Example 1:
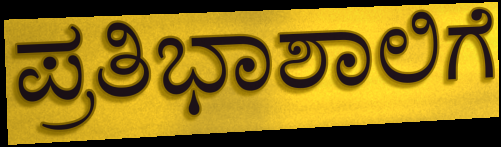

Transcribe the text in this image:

ಪ್ರತಿಭಾಶಾಲಿಗೆ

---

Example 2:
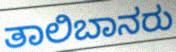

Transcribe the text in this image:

ತಾಲಿಬಾನರು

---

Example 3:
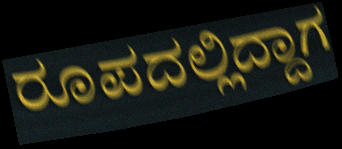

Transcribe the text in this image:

ರೂಪದಲ್ಲಿದ್ದಾಗ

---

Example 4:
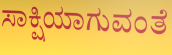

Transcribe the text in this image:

ಸಾಕ್ಷಿಯಾಗುವಂತೆ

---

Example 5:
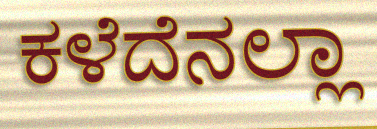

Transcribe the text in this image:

ಕಳೆದೆನಲ್ಲಾ